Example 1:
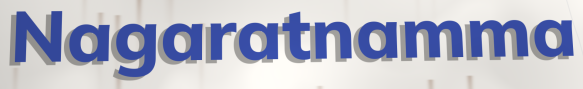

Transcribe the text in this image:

Nagaratnamma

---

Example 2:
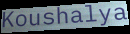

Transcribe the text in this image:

Koushalya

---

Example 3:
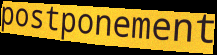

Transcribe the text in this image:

postponement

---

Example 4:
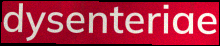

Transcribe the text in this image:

dysenteriae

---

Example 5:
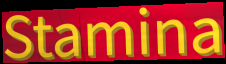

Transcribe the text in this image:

Stamina